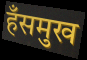
हँसमुख